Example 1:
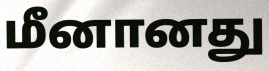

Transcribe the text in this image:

மீனானது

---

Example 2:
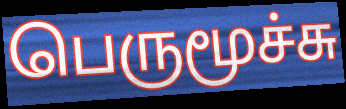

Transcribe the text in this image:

பெருமூச்சு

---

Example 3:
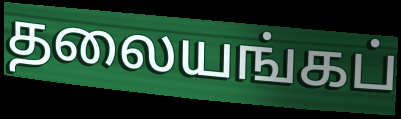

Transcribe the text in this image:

தலையங்கப்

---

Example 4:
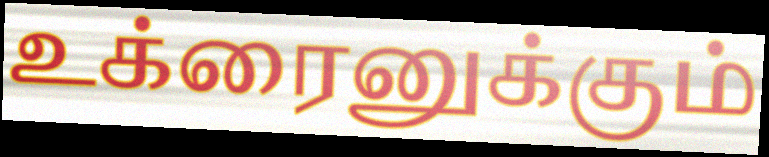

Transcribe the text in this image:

உக்ரைனுக்கும்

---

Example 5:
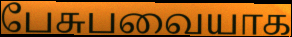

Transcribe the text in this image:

பேசுபவையாக